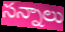
సన్నాలు